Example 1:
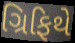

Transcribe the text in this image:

ગ્રિફિથે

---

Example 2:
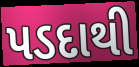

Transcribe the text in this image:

પડદાથી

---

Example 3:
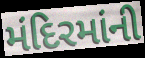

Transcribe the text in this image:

મંદિરમાંની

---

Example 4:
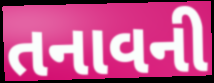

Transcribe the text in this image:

તનાવની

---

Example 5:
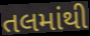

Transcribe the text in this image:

તલમાંથી